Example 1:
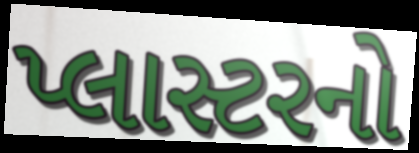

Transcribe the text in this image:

પ્લાસ્ટરનો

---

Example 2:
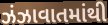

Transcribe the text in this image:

ઝંઝાવાતમાંથી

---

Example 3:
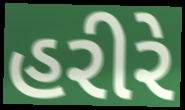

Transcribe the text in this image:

હરીરે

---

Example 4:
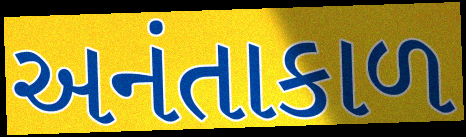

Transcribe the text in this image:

અનંતાકાળ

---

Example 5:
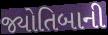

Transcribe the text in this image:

જ્યોતિબાની